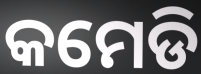
କମେଡି